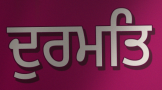
ਦੁਰਮਤਿ